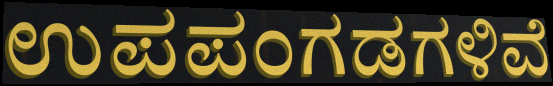
ಉಪಪಂಗಡಗಳಿವೆ